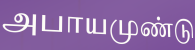
அபாயமுண்டு